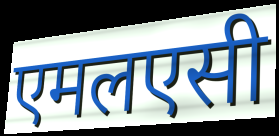
एमलएसी